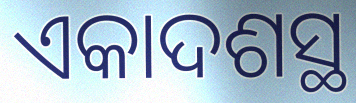
ଏକାଦଶସ୍ଥ